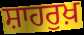
ਸ਼ਾਹਰੁਖ਼